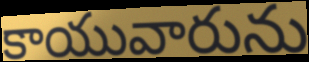
కాయువారును